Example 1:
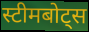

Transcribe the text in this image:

स्टीमबोट्स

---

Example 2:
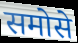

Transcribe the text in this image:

समोसे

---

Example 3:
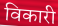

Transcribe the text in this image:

विकारी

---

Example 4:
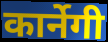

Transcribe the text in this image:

कार्नेगी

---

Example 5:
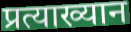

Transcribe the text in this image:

प्रत्याख्यान